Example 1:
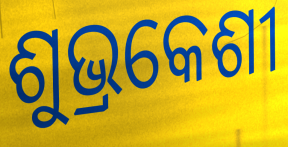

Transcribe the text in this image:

ଶୁଭ୍ରକେଶୀ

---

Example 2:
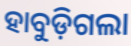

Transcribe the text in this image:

ହାବୁଡ଼ିଗଲା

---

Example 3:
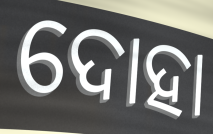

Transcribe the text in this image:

ଦୋହା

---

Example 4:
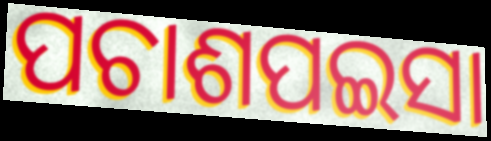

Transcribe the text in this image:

ପଚାଶପଇସା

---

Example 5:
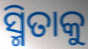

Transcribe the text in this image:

ସ୍ମିତାକୁ